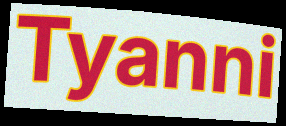
Tyanni